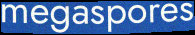
megaspores